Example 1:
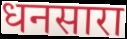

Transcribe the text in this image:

धनसारा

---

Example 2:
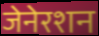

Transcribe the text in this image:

जेनेरशन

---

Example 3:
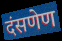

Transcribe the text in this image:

दंसणेण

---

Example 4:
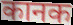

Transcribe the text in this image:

कानक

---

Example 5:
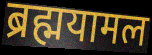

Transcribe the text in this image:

ब्रह्मयामल